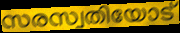
സരസ്വതിയോട്